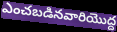
ఎంచబడినవారియొద్ద